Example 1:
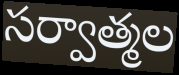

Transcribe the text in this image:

సర్వాత్మల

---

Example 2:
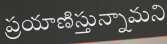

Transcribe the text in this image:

ప్రయాణిస్తున్నామని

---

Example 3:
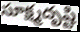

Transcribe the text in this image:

సూక్ష్మదృష్టి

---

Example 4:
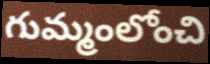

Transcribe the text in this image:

గుమ్మంలోంచి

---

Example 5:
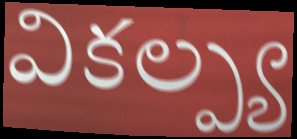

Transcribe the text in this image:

వికల్ప్య